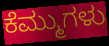
ಕೆಮ್ಮುಗಳು